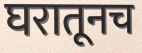
घरातूनच